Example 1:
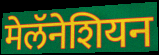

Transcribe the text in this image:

मेलॅनेशियन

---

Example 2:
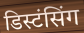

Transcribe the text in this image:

डिस्टंसिंग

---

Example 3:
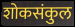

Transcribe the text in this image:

शोकसंकुल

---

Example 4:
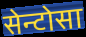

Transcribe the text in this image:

सेन्टोसा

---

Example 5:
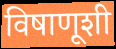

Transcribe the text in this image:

विषाणूशी